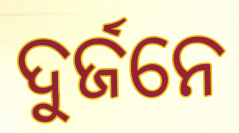
ଦୁର୍ଜନେ